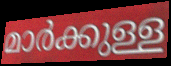
മാർക്കുള്ള